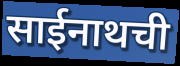
साईनाथची